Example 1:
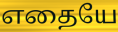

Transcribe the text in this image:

எதையே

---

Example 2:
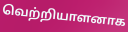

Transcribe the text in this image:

வெற்றியாளனாக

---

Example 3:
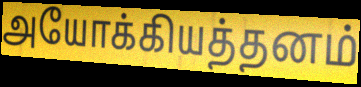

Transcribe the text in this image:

அயோக்கியத்தனம்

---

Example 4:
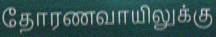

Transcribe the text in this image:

தோரணவாயிலுக்கு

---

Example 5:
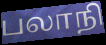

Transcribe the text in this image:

பலாநி